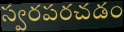
స్వరపరచడం